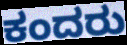
ಕಂದರು